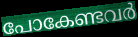
പോകേണ്ടവർ